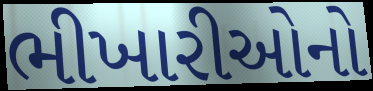
ભીખારીઓનો